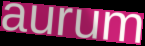
aurum